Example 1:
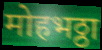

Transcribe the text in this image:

मोहभठ्ठा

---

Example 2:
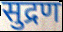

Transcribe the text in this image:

सुद्रण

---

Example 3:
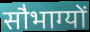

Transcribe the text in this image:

सौभाग्यों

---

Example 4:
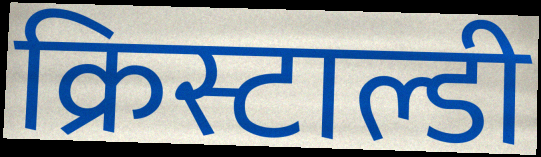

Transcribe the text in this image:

क्रिस्टाल्डी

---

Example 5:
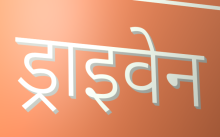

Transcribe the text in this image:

ड्राइवेन